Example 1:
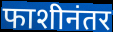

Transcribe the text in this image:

फाशीनंतर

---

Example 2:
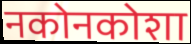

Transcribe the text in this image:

नकोनकोशा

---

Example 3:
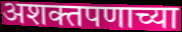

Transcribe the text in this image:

अशक्तपणाच्या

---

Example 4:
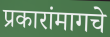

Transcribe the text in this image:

प्रकारांमागचे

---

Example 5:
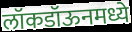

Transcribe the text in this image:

लॉकडॉऊनमध्ये